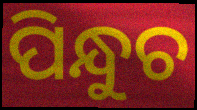
ପିନ୍ଧୁଚ